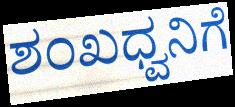
ಶಂಖಧ್ವನಿಗೆ